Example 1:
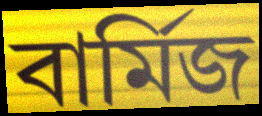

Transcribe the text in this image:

বাৰ্মিজ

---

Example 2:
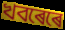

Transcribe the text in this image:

খবৰেৰে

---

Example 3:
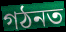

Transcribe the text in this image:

গঠনত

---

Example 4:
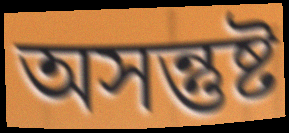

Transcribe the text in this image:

অসন্তুষ্ট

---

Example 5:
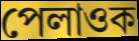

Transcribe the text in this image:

পেলাওক